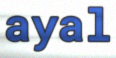
ayal